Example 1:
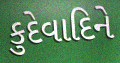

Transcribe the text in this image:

કુદેવાદિને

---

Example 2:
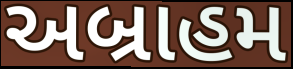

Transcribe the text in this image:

અબ્રાહમ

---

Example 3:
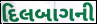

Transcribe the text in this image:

દિલબાગની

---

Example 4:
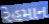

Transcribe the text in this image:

રેહમાન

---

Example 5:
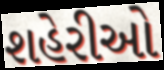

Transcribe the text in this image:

શહેરીઓ